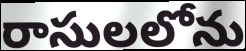
రాసులలోను